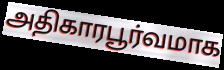
அதிகாரபூர்வமாக